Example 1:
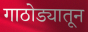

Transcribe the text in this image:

गाठोड्यातून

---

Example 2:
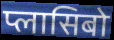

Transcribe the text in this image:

प्लासिबो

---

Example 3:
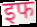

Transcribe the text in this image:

इफ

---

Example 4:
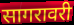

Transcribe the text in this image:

सागरावरी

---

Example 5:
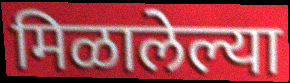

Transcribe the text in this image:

मिळालेल्या